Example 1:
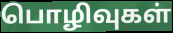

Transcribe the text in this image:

பொழிவுகள்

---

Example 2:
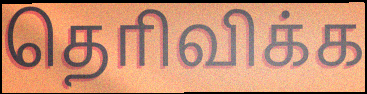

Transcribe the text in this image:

தெரிவிக்க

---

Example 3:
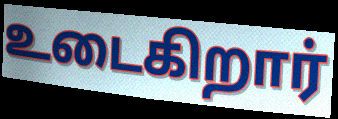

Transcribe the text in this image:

உடைகிறார்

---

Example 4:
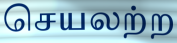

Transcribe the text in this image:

செயலற்ற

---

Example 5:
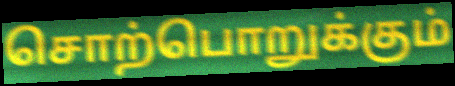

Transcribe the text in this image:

சொற்பொறுக்கும்